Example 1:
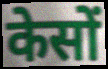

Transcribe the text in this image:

केसों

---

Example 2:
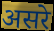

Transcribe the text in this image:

असरे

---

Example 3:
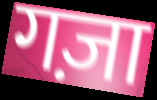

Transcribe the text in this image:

गज़ा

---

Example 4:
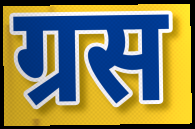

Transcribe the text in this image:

ग्रस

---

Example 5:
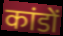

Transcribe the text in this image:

कांडों